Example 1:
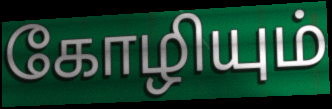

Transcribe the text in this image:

கோழியும்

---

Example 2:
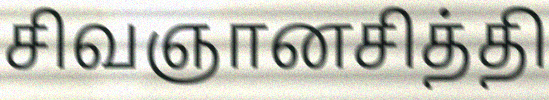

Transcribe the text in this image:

சிவஞானசித்தி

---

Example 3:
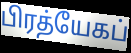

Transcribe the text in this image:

பிரத்யேகப்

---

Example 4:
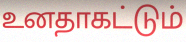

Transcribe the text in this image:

உனதாகட்டும்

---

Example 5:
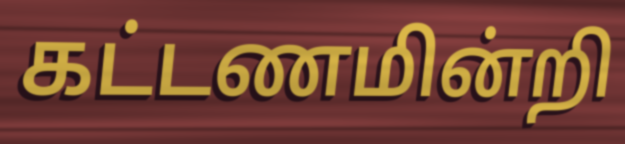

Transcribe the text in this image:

கட்டணமின்றி